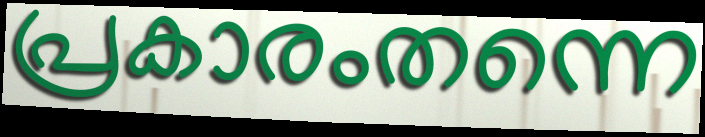
പ്രകാരംതന്നെ